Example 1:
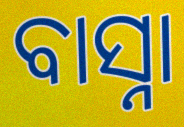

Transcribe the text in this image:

ବାସ୍ନା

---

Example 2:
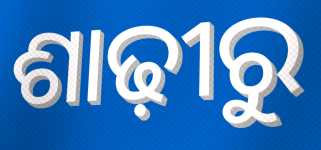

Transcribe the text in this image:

ଶାଢ଼ୀରୁ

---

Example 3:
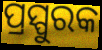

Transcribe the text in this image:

ପ୍ରସ୍ପୁରକ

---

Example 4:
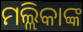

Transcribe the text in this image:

ମଲ୍ଲିକାଙ୍କ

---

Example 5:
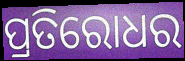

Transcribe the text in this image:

ପ୍ରତିରୋଧର